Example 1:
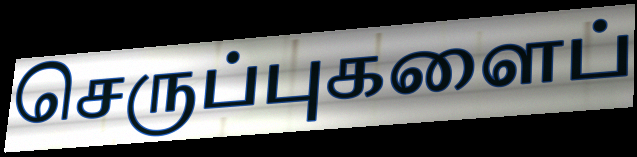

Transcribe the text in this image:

செருப்புகளைப்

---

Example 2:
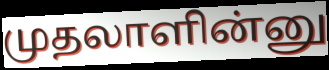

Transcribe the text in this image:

முதலாளின்னு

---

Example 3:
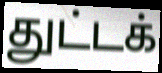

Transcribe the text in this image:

துட்டக்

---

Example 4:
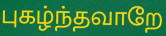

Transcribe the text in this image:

புகழ்ந்தவாறே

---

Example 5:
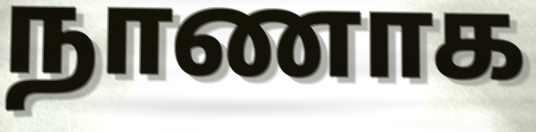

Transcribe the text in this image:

நாணாக